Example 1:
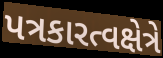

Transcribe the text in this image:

પત્રકારત્વક્ષેત્રે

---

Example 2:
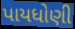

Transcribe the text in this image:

પાયધોણી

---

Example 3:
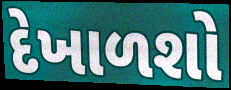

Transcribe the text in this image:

દેખાળશો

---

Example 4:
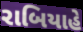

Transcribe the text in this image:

રાબિયાહે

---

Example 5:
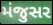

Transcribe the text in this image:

મંજુસર